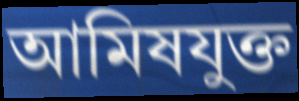
আমিষযুক্ত